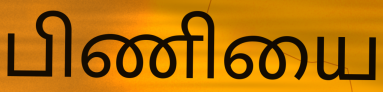
பிணியை